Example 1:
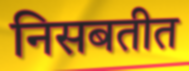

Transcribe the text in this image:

निसबतीत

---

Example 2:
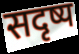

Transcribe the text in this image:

सदृष्य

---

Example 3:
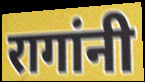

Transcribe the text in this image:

रागांनी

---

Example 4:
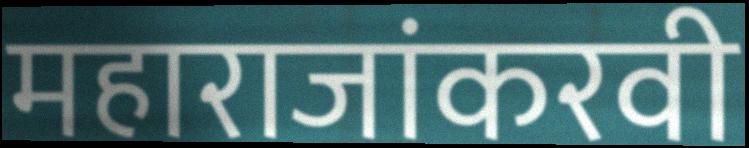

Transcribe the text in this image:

महाराजांकरवी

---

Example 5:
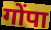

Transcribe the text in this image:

गोंपा